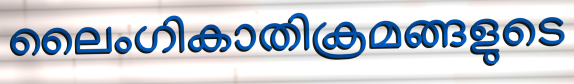
ലൈംഗികാതിക്രമങ്ങളുടെ